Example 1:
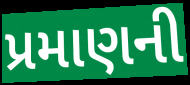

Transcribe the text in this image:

પ્રમાણની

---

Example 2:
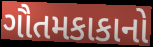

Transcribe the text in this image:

ગૌતમકાકાનો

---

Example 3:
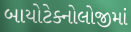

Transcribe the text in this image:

બાયોટેક્નોલોજીમાં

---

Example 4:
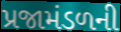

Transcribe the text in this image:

પ્રજામંડળની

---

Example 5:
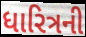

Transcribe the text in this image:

ધારિત્રની